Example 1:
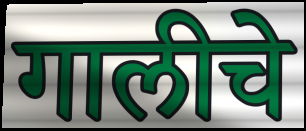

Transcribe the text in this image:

गालीचे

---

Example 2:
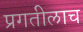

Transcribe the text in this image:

प्रगतीलाच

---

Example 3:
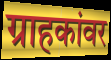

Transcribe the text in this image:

ग्राहकांवर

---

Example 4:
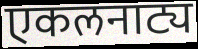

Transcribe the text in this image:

एकलनाट्य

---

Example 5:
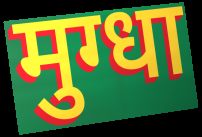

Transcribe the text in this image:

मुग्धा